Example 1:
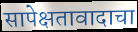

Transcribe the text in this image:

सापेक्षतावादाचा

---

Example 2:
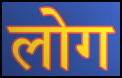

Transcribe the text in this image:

लोग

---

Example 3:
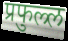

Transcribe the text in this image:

प्रफुल्ल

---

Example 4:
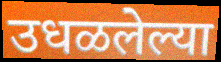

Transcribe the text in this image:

उधळलेल्या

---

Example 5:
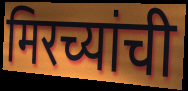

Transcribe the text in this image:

मिरच्यांची